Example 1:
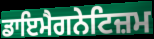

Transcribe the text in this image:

ਡਾਇਮੈਗਨੇਟਿਜ਼ਮ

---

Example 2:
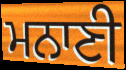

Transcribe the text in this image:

ਮਨਾਣੀ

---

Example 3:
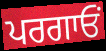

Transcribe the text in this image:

ਪਰਗਾਓਂ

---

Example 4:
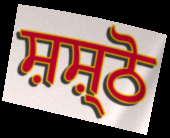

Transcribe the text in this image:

ਸ਼ਸ਼੍ਠੋ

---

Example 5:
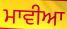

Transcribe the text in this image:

ਮਾਵੀਆ